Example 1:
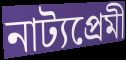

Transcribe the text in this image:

নাট্যপ্ৰেমী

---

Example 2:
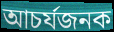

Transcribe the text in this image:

আচৰ্যজনক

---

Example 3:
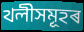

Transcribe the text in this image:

থলীসমূহৰ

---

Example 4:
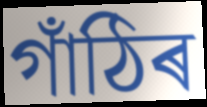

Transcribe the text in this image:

গাঁঠিৰ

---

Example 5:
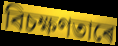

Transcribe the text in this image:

বিচক্ষণতাৰে